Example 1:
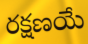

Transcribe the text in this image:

రక్షణయే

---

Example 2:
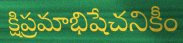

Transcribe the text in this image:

క్షిప్రమాభిషేచనికీం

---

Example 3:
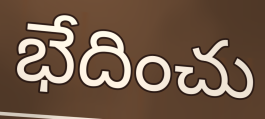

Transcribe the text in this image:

భేదించు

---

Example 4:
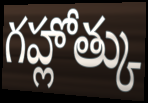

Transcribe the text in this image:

గహ్లోత్కు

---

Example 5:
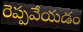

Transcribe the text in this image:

రెప్పవేయడం